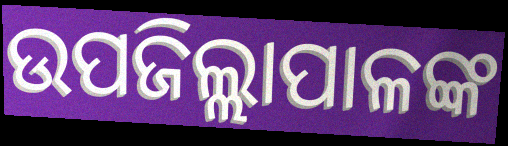
ଉପଜିଲ୍ଲାପାଳଙ୍କ